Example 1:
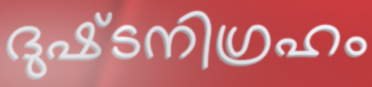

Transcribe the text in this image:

ദുഷ്‌ടനിഗ്രഹം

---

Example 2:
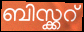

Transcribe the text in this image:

ബിസ്ക്കറ്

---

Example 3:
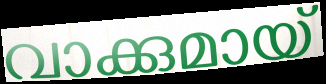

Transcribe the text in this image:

വാക്കുമായ്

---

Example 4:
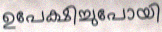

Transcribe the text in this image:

ഉപേക്ഷിച്ചുപോയി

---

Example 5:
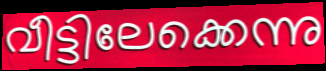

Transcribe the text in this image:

വീട്ടിലേക്കെന്നു